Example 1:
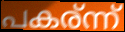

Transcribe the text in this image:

പകര്ന്ന്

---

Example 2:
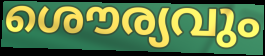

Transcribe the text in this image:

ശൌര്യവും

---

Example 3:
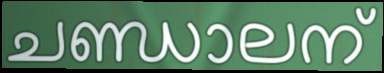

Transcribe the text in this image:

ചണ്ഡാലന്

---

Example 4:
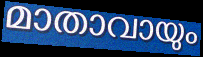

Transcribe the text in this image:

മാതാവായും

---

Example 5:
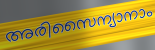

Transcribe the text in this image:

അരിസൈന്യാനാം